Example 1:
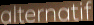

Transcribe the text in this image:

alternatif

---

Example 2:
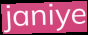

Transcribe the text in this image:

janiye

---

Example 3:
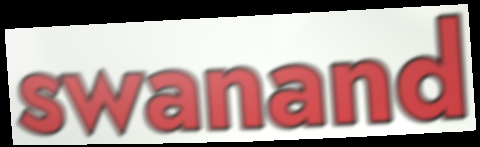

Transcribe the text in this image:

swanand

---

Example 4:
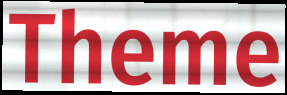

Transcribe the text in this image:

Theme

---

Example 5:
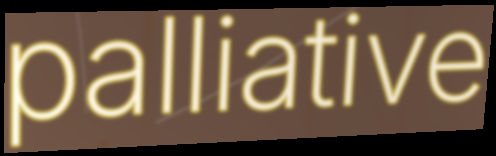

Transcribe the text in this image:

palliative